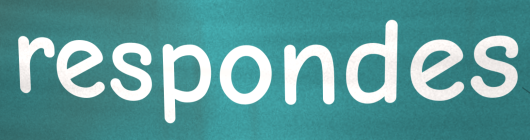
respondes